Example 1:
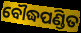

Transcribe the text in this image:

ବୌଦ୍ଧପଣ୍ଡିତ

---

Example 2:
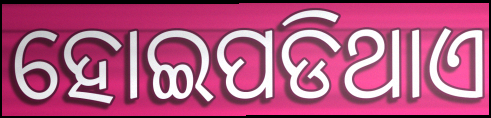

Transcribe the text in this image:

ହୋଇପଡିଥାଏ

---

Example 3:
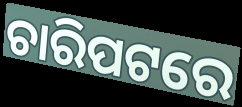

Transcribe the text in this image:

ଚାରିପଟରେ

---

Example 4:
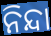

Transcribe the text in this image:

ନିନ୍ଦା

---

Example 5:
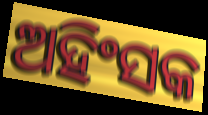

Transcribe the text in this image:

ଅହିଂସକ